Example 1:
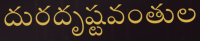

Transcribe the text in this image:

దురదృష్టవంతుల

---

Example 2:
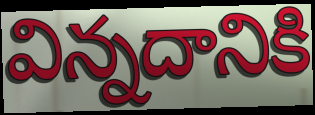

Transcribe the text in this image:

విన్నదానికి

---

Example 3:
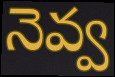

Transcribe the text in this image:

నెవ్వ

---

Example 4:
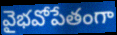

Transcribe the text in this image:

వైభవోపేతంగా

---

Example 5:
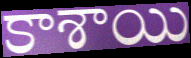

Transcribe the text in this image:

కాశాయి